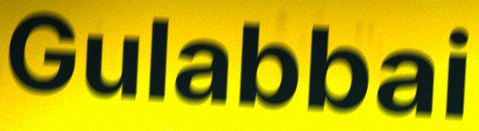
Gulabbai